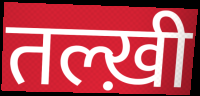
तल्ख़ी